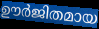
ഊർജിതമായ